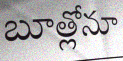
బూత్లోనూ